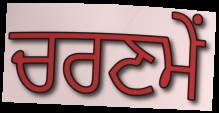
ਚਰਣਮੇਂ